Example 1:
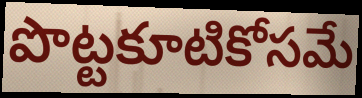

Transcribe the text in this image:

పొట్టకూటికోసమే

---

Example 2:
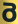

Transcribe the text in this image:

రె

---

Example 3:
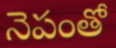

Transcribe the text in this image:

నెపంతో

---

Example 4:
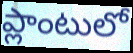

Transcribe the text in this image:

ప్లాంటులో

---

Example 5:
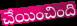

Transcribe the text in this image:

చేయించింది